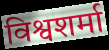
विश्वशर्मा